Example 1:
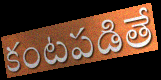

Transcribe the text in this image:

కంటపడితే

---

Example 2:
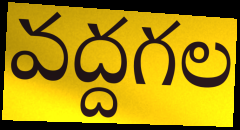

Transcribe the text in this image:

వద్దగల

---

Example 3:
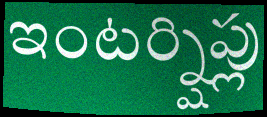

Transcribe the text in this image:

ఇంటర్న్షిప్లు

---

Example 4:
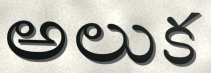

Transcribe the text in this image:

అలుక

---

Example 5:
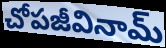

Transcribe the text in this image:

చోపజీవినామ్